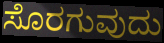
ಸೊರಗುವುದು